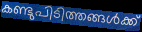
കണ്ടുപിടിത്തങ്ങൾക്ക്